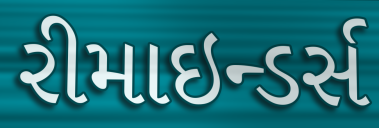
રીમાઇન્ડર્સ